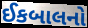
ઈકબાલનો